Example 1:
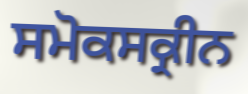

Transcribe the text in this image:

ਸਮੋਕਸਕ੍ਰੀਨ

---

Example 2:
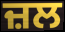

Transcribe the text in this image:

ਜ਼ਲ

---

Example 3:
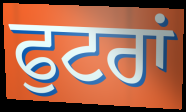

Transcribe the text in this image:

ਫੁਟਰਾਂ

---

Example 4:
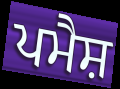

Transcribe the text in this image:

ਪਮੈਸ਼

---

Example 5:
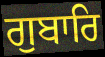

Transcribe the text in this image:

ਗੁਬਾਰਿ